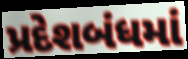
પ્રદેશબંધમાં